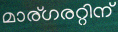
മാര്ഗരറ്റിന്